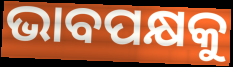
ଭାବପକ୍ଷକୁ